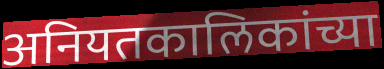
अनियतकालिकांच्या